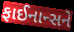
ફાઈનાન્સને